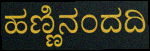
ಹಣ್ಣಿನಂದದಿ